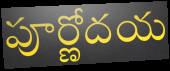
పూర్ణోదయ